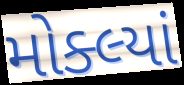
મોક્લ્યાં